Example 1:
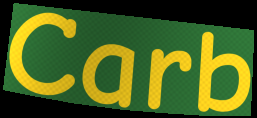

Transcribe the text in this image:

Carb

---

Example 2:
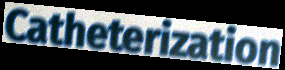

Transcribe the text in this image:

Catheterization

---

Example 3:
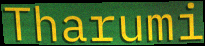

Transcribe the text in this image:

Tharumi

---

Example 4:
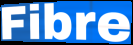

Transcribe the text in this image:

Fibre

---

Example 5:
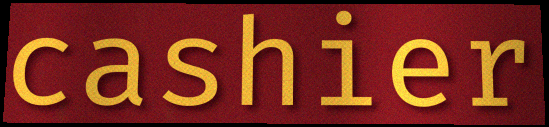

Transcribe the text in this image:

cashier